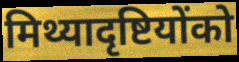
मिथ्यादृष्टियोंको